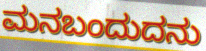
ಮನಬಂದುದನು